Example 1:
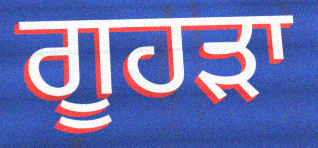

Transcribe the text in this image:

ਗੂਹੜਾ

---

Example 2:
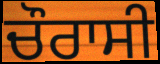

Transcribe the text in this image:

ਚੌਰਾਸੀ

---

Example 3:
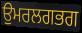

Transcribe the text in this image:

ਉੁਮਰਲਗਭਗ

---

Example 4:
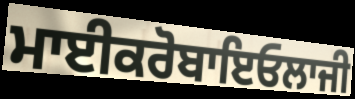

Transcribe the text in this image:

ਮਾਈਕਰੋਬਾਇਓਲਾਜੀ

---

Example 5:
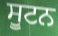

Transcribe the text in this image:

ਸੂਟਨ